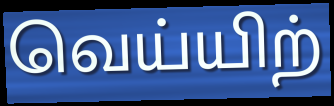
வெய்யிற்